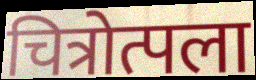
चित्रोत्पला